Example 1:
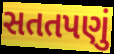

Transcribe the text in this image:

સતતપણું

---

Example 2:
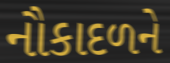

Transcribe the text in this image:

નૌકાદળને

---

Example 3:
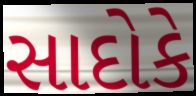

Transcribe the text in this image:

સાદોકે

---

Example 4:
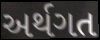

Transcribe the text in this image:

અર્થગત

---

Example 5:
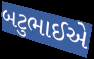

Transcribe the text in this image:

બટુભાઈએ